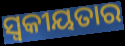
ସ୍ୱକୀୟତାର